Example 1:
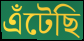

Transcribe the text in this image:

এঁটেছি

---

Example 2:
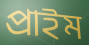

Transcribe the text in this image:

প্রাইম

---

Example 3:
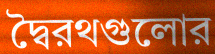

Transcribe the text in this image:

দ্বৈরথগুলোর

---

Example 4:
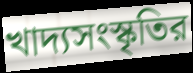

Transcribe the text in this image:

খাদ্যসংস্কৃতির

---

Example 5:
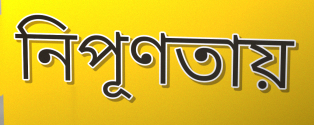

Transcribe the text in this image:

নিপূণতায়